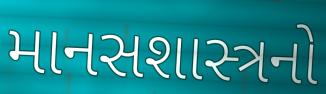
માનસશાસ્ત્રનો